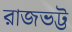
রাজভট্ট